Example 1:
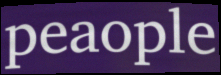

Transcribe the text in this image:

peaople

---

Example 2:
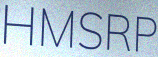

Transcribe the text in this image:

HMSRP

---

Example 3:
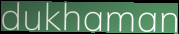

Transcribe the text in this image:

dukhaman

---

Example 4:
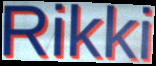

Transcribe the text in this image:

Rikki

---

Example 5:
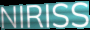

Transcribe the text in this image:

NIRISS